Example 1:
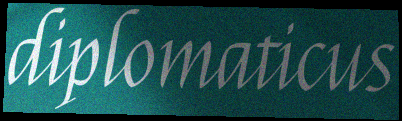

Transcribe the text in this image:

diplomaticus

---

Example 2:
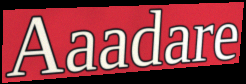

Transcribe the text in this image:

Aaadare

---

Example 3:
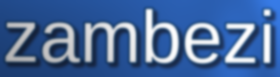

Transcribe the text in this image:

zambezi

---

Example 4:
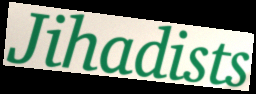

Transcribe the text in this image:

Jihadists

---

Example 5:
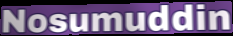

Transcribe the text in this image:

Nosumuddin